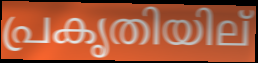
പ്രകൃതിയില്